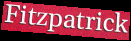
Fitzpatrick